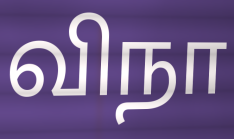
விநா